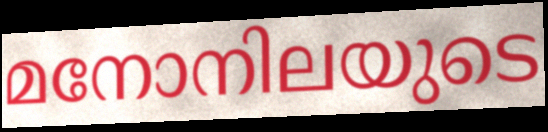
മനോനിലയുടെ